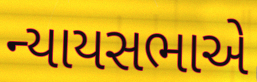
ન્યાયસભાએ